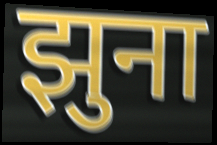
झुना